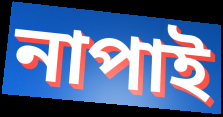
নাপাই